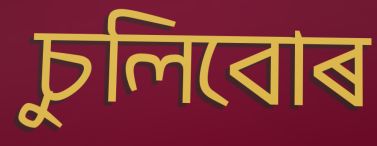
চুলিবোৰ